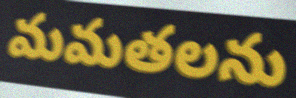
మమతలను